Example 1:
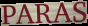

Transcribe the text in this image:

PARAS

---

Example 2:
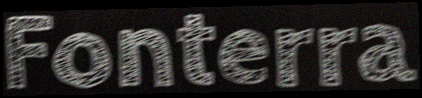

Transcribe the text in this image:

Fonterra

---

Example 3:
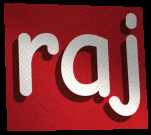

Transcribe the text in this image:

raj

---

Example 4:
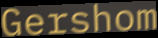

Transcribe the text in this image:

Gershom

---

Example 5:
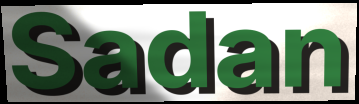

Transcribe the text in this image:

Sadan